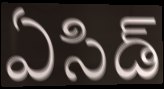
ఏసిడ్